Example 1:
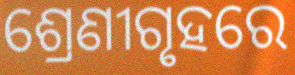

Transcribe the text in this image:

ଶ୍ରେଣୀଗୃହରେ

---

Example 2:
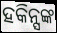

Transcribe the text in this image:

ହକିନ୍ସଙ୍କ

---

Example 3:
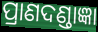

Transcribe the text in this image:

ପ୍ରାଣଦଣ୍ଡାଜ୍ଞା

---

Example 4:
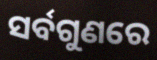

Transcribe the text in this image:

ସର୍ବଗୁଣରେ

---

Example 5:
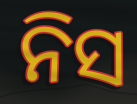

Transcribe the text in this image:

ନିସ